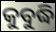
କୁବୁଦ୍ଧି